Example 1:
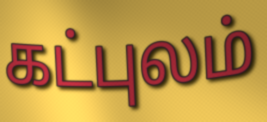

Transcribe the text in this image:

கட்புலம்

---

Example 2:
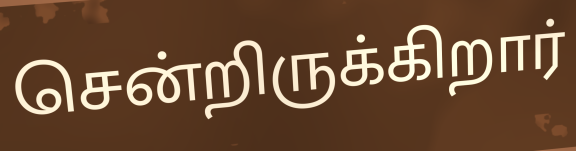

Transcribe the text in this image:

சென்றிருக்கிறார்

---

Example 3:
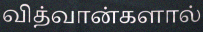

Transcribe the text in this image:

வித்வான்களால்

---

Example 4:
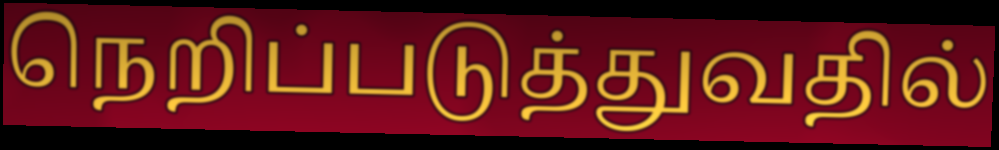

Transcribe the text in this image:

நெறிப்படுத்துவதில்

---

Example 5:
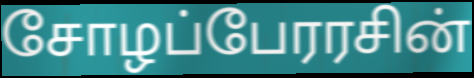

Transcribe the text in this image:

சோழப்பேரரசின்